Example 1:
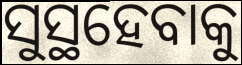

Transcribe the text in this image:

ସୁସ୍ଥହେବାକୁ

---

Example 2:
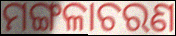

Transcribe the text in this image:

ମଙ୍ଗଳାଚରଣ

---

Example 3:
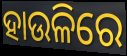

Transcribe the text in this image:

ହାଉଳିରେ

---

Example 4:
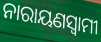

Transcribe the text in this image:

ନାରାୟଣସ୍ଵାମୀ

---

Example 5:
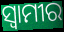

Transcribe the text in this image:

ସ୍ଵାମୀର